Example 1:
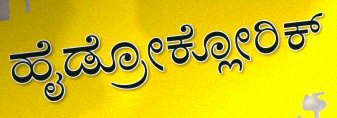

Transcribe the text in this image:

ಹೈಡ್ರೋಕ್ಲೋರಿಕ್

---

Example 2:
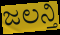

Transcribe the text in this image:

ಜಲನ್ತಿ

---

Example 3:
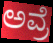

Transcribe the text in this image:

ಅವ್ರೆ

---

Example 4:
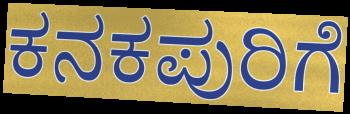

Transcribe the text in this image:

ಕನಕಪುರಿಗೆ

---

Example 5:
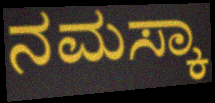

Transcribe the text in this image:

ನಮಸ್ಕಾ